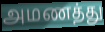
அமணத்து